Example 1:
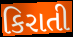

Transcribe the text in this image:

કિરાતી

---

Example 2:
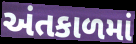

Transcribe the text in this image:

અંતકાળમાં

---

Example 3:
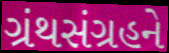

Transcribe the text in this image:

ગ્રંથસંગ્રહને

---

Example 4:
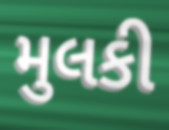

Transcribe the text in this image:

મુલકી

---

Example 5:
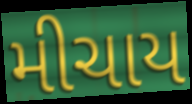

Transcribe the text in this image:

મીચાય